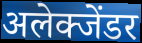
अलेक्जेंडर